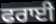
ਫਰਾਈ